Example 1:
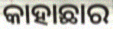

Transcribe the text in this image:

କାହାଛାର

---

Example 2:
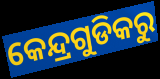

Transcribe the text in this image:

କେନ୍ଦ୍ରଗୁଡିକରୁ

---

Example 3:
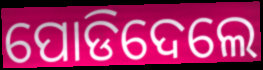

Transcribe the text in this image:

ପୋଡିଦେଲେ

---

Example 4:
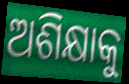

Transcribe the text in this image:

ଅଶିକ୍ଷାକୁ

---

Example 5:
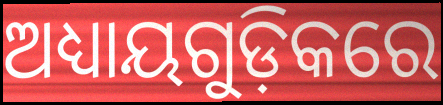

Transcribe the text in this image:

ଅଧ୍ୟାୟଗୁଡ଼ିକରେ